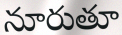
నూరుతూ